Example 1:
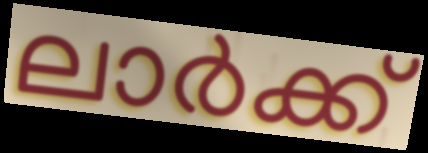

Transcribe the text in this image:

ലാർക്ക്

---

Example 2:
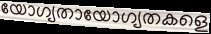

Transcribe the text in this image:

യോഗ്യതായോഗ്യതകളെ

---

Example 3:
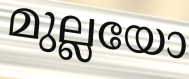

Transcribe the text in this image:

മുല്ലയോ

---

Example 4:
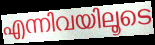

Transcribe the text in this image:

എന്നിവയിലൂടെ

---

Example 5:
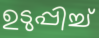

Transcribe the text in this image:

ഉടുപ്പിച്ച്